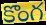
కొంగ